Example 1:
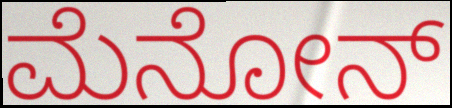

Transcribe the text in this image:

ಮೆನೋನ್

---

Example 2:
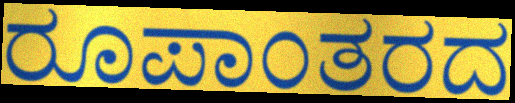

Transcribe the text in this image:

ರೂಪಾಂತರದ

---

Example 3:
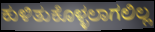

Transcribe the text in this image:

ಕುಳಿತುಕೊಳ್ಳಲಾಗಲಿಲ್ಲ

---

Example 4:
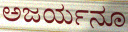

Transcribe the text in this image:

ಅಜರ್ಯನೂ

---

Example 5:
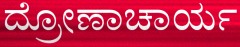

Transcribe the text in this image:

ದ್ರೋಣಾಚಾರ್ಯ